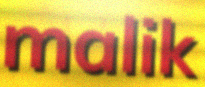
malik